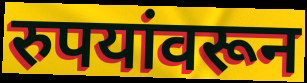
रुपयांवरून